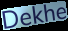
Dekhe